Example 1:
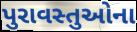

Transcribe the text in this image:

પુરાવસ્તુઓના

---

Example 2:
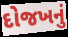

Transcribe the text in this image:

દોજખનું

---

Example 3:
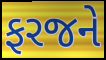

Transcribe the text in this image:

ફરજને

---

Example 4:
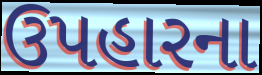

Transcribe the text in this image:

ઉપહારના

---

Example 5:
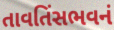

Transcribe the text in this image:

તાવતિંસભવનં